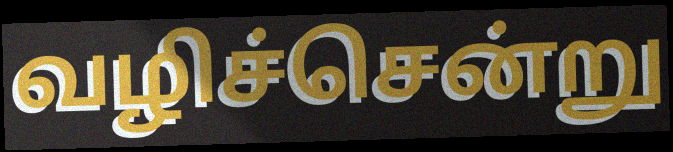
வழிச்சென்று